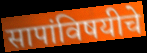
सापांविषयीचे